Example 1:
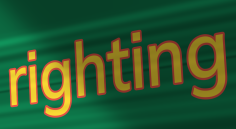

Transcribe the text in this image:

righting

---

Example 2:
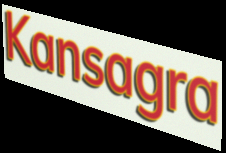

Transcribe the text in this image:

Kansagra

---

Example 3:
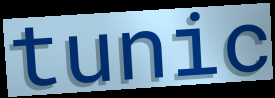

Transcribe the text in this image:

tunic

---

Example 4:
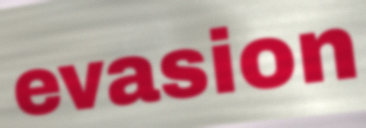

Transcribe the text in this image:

evasion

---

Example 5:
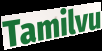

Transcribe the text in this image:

Tamilvu